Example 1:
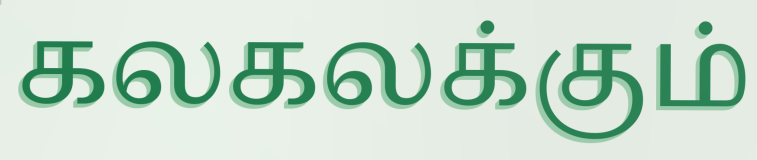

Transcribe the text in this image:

கலகலக்கும்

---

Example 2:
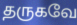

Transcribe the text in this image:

தருகவே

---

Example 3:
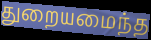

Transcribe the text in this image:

துறையமைந்த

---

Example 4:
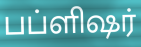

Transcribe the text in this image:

பப்ளிஷர்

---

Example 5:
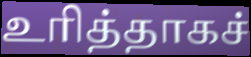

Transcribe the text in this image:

உரித்தாகச்